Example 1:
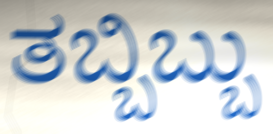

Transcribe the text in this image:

ತಬ್ಬಿಬ್ಬು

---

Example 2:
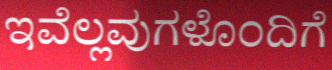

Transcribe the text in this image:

ಇವೆಲ್ಲವುಗಳೊಂದಿಗೆ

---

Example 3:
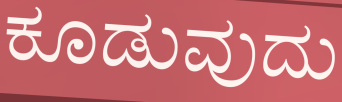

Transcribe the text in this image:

ಕೂಡುವುದು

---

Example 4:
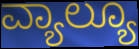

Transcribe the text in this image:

ವ್ಯಾಲ್ಯೂ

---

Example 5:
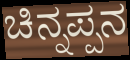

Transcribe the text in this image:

ಚಿನ್ನಪ್ಪನ